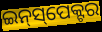
ଇନ୍‍ସ୍‌ପେକ୍ଟର